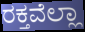
ರಕ್ತವೆಲ್ಲಾ